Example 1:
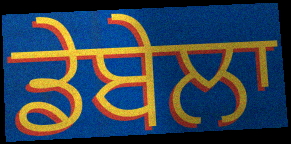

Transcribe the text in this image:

ਡੇਬੇਲਾ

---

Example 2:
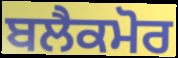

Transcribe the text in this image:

ਬਲੈਕਮੋਰ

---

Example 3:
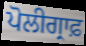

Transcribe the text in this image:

ਪੋਲੀਗ੍ਰਾਫ਼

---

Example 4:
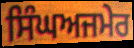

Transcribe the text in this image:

ਸਿੰਘਅਜਮੇਰ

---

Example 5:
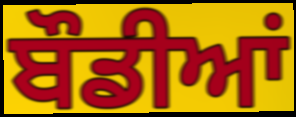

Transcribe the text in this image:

ਬੌਡੀਆਂ